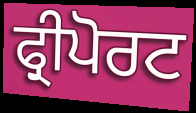
ਫ੍ਰੀਪੋਰਟ